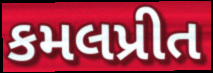
કમલપ્રીત